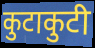
कुटाकुटी